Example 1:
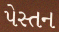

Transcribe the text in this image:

પેસ્તન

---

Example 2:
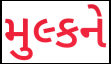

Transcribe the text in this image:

મુલ્કને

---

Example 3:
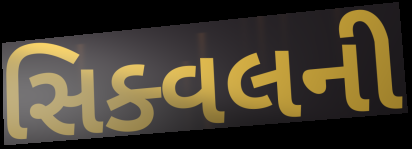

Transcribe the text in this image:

સિક્વલની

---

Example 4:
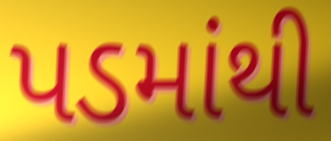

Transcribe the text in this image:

પડમાંથી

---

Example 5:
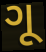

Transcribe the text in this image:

ગૂ